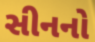
સીનનો